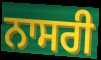
ਨਾਸਰੀ